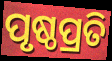
ପୃଷ୍ଠପ୍ରତି